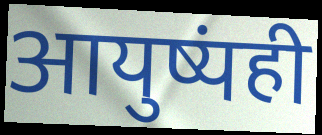
आयुष्यंही